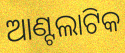
ଆଣ୍ଟଲାଟିକ